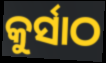
କୁର୍ସାଠ